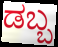
ಡಬ್ಬ